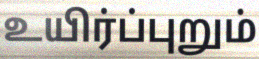
உயிர்ப்புறும்